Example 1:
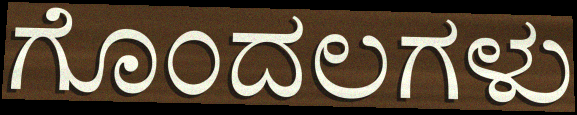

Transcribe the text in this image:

ಗೊಂದಲಗಳು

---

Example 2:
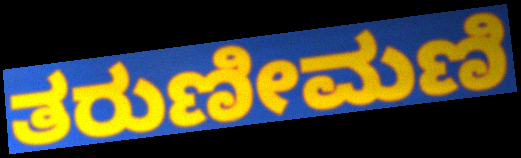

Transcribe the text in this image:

ತರುಣೀಮಣಿ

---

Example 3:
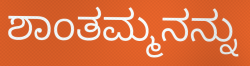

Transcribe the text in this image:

ಶಾಂತಮ್ಮನನ್ನು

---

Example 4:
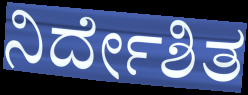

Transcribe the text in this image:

ನಿರ್ದೇಶಿತ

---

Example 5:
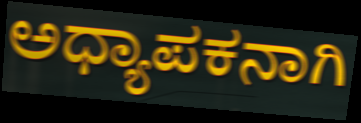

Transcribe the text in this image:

ಅಧ್ಯಾಪಕನಾಗಿ